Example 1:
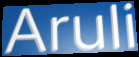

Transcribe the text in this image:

Aruli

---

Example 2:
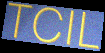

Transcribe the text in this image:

TCIL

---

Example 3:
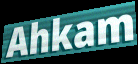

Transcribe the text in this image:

Ahkam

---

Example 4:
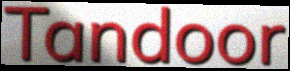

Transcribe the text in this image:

Tandoor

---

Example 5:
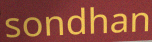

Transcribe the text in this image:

sondhan